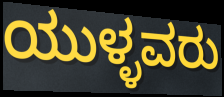
ಯುಳ್ಳವರು